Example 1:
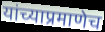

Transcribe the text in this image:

यांच्याप्रमाणेच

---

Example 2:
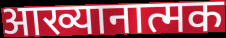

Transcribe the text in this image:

आख्यानात्मक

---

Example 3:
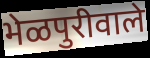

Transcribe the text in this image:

भेळपुरीवाले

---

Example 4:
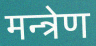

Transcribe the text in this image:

मन्त्रेण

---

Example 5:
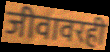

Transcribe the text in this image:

जीवावरही